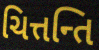
ચિત્તન્તિ